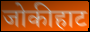
जोकीहाट